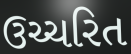
ઉચ્ચરિત